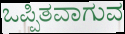
ಒಪ್ಪಿತವಾಗುವ